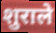
शुराले